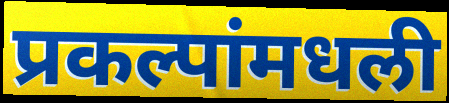
प्रकल्पांमधली